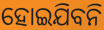
ହୋଇଯିବନି